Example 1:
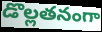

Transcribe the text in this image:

డొల్లతనంగా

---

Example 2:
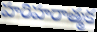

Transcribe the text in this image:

హరిహరాత్మక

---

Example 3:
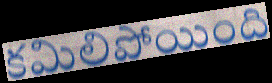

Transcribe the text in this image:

కమిలిపోయింది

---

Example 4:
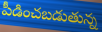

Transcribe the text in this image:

పీడించబడుతున్న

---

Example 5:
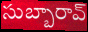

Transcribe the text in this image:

సుబ్బారావ్